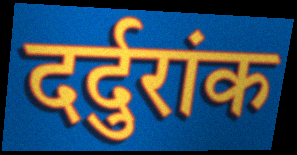
दर्दुरांक